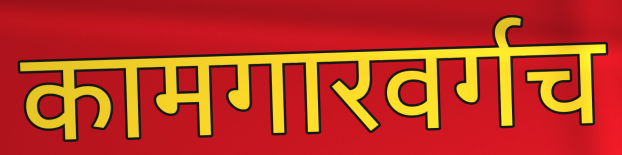
कामगारवर्गच